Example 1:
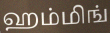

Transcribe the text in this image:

ஹம்மிங்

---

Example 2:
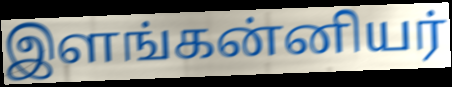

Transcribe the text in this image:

இளங்கன்னியர்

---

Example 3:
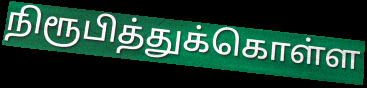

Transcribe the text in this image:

நிரூபித்துக்கொள்ள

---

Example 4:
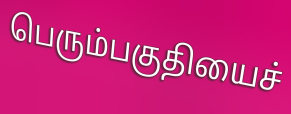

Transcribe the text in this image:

பெரும்பகுதியைச்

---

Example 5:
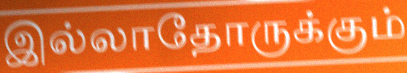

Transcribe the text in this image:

இல்லாதோருக்கும்